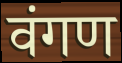
वंगण